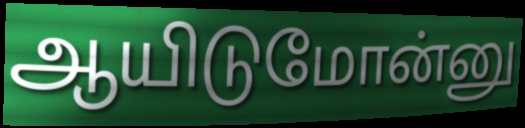
ஆயிடுமோன்னு